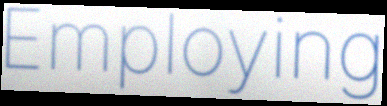
Employing